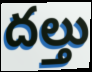
దల్తు